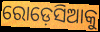
ରୋଡ଼େସିଆକୁ